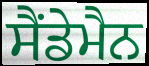
ਸੈਂਡੇਮੈਨ